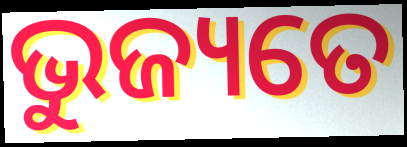
ଭୁଜ୍ୟତେ